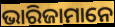
ଭାରିଜାମାନେ